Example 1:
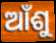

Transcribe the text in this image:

ଆଁଶୁ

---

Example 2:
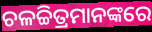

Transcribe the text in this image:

ଚଳଚ୍ଚିତ୍ରମାନଙ୍କରେ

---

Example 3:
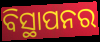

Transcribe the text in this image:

ବିସ୍ଥାପନର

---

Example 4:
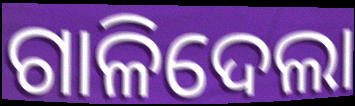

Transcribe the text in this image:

ଗାଳିଦେଲା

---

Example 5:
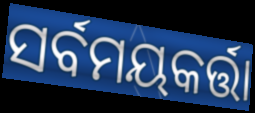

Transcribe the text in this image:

ସର୍ବମୟକର୍ତ୍ତା